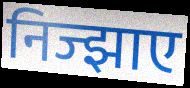
निज्झाए